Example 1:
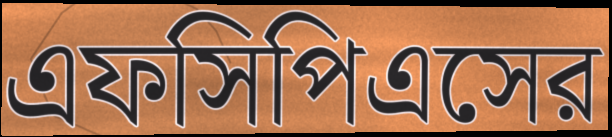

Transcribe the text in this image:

এফসিপিএসের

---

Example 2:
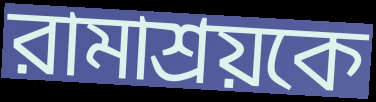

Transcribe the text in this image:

রামাশ্রয়কে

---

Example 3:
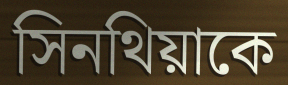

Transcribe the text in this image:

সিনথিয়াকে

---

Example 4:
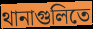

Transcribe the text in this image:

থানাগুলিতে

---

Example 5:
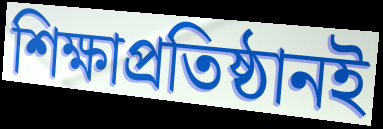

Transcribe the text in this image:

শিক্ষাপ্রতিষ্ঠানই